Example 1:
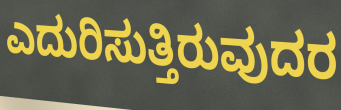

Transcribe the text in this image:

ಎದುರಿಸುತ್ತಿರುವುದರ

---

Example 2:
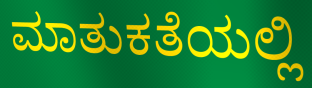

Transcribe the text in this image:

ಮಾತುಕತೆಯಲ್ಲಿ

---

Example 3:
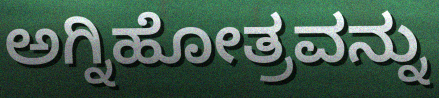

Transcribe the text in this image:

ಅಗ್ನಿಹೋತ್ರವನ್ನು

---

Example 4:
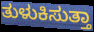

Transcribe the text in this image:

ತುಳುಕಿಸುತ್ತಾ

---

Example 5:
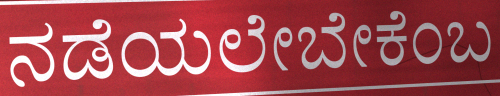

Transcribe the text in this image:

ನಡೆಯಲೇಬೇಕೆಂಬ